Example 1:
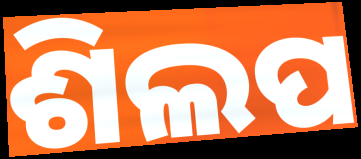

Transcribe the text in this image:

ଶିଲପ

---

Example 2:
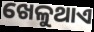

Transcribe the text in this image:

ଖେଳୁଥାଏ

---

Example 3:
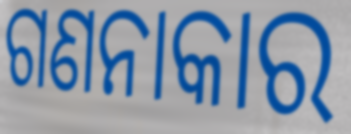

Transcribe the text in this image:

ଗଣନାକାର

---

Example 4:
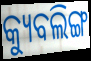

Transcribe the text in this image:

କ୍ୟୁବଲିଙ୍ଗ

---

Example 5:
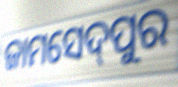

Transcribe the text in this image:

ଜାମସେଦ୍‌ପୁର